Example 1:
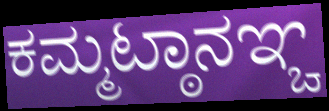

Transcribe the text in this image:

ಕಮ್ಮಟ್ಠಾನಞ್ಚ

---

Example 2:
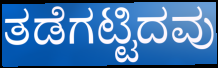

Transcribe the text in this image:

ತಡೆಗಟ್ಟಿದವು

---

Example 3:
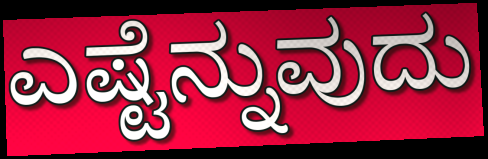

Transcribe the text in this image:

ಎಷ್ಟೆನ್ನುವುದು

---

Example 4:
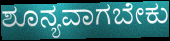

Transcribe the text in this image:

ಶೂನ್ಯವಾಗಬೇಕು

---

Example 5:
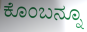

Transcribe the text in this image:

ಕೊಂಬನ್ನೂ